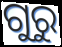
ଗୁରୁ